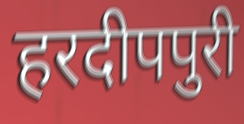
हरदीपपुरी